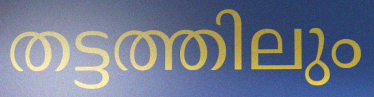
തട്ടത്തിലും